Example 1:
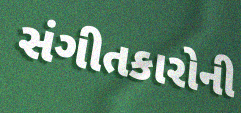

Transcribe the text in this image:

સંગીતકારોની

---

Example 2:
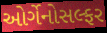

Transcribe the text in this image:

ઓર્ગેનોસલ્ફર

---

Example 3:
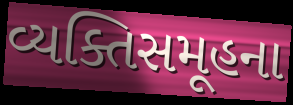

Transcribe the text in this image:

વ્યક્તિસમૂહના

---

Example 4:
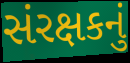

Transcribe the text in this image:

સંરક્ષકનું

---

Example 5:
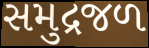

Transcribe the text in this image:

સમુદ્રજળ